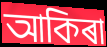
আকিৰা